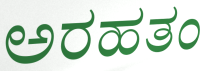
ಅರಹತಂ